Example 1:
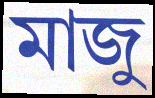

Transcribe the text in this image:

মাজু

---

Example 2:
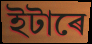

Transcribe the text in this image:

ইটাৰে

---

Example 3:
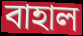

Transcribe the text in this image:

বাহাল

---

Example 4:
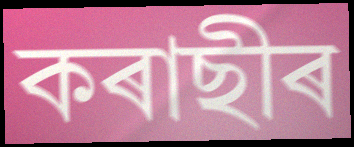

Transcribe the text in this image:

কৰাছীৰ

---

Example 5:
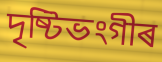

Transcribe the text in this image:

দৃষ্টিভংগীৰ